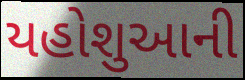
યહોશુઆની